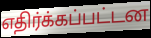
எதிர்க்கப்பட்டன